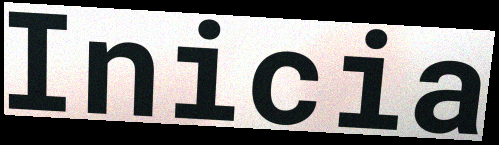
Inicia